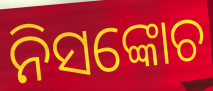
ନିସଙ୍କୋଚ